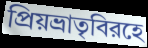
প্রিয়ভ্রাতৃবিরহে